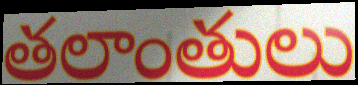
తలాంతులు